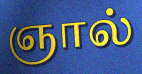
ஞால்